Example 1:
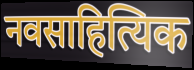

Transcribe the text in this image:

नवसाहित्यिक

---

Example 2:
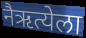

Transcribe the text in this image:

नैऋत्येला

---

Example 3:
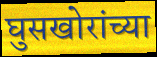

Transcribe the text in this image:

घुसखोरांच्या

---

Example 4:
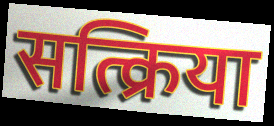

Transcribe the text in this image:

सत्क्रिया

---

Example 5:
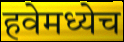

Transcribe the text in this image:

हवेमध्येच